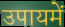
उपायमें